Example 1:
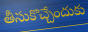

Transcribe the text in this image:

తీసుకొచ్చేందుకు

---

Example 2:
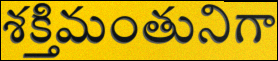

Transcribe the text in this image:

శక్తిమంతునిగా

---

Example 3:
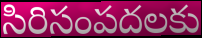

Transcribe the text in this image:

సిరిసంపదలకు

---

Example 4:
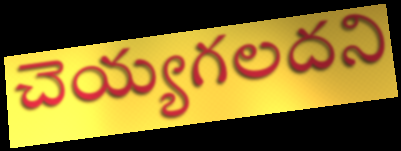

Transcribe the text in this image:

చెయ్యగలదని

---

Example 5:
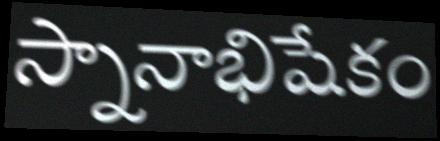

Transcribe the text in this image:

స్నానాభిషేకం